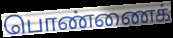
பொண்ணைக்